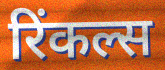
रिंकल्स